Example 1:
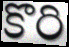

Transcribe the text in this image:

కొరి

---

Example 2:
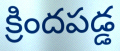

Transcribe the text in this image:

క్రిందపడ్డ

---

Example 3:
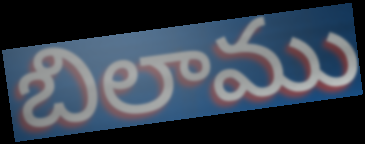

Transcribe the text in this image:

బిలాము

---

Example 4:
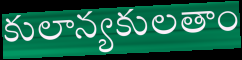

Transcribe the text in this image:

కులాన్యకులతాం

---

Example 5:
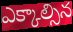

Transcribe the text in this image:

ఎక్కాల్సిన